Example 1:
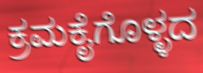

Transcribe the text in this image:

ಕ್ರಮಕೈಗೊಳ್ಳದ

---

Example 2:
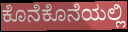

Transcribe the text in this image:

ಕೊನೆಕೊನೆಯಲ್ಲಿ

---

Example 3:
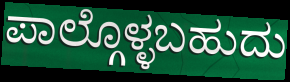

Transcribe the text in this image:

ಪಾಲ್ಗೊಳ್ಳಬಹುದು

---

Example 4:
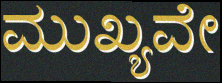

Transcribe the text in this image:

ಮುಖ್ಯವೇ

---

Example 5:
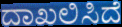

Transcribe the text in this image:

ದಾಖಲಿಸಿದೆ